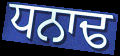
ਧਨਾਢ